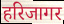
हरिजागर